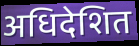
अधिदेशित